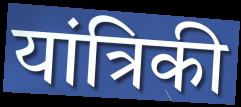
यांत्रिकी